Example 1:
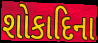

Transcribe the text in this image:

શોકાદિના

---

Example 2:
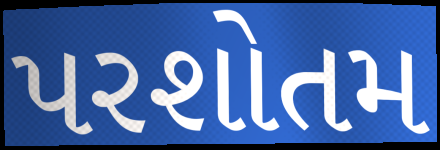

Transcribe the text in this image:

પરશોતમ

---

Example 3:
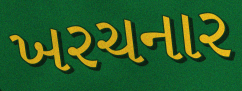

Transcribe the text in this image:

ખરચનાર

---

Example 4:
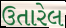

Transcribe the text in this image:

ઉતારેલ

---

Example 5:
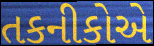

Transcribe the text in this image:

તકનીકોએ